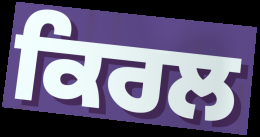
ਕਿਰਲ